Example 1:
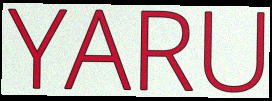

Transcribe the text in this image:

YARU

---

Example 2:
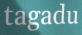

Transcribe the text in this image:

tagadu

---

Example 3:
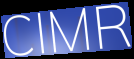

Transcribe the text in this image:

CIMR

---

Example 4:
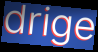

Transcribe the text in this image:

drige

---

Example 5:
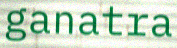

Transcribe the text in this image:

ganatra